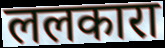
ललकारा